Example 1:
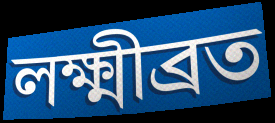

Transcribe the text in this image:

লক্ষ্মীব্রত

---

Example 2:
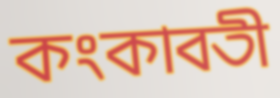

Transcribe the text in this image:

কংকাবতী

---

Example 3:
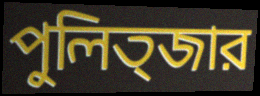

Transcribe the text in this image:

পুলিত্জার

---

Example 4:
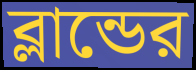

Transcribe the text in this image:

ব্লান্ডের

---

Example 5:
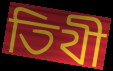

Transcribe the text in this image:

তিথী